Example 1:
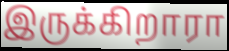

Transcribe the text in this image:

இருக்கிறாரா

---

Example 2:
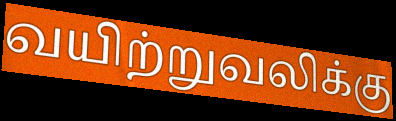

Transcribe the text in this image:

வயிற்றுவலிக்கு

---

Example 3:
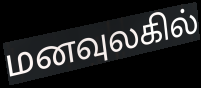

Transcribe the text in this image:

மனவுலகில்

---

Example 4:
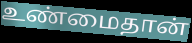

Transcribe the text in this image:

உண்மைதான்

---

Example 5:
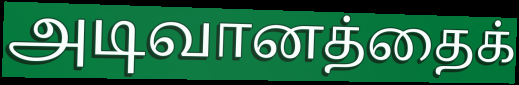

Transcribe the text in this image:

அடிவானத்தைக்